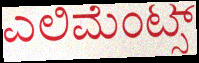
ಎಲಿಮೆಂಟ್ಸ್